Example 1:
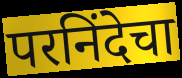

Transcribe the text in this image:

परनिंदेचा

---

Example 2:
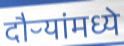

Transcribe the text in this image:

दौऱ्यांमध्ये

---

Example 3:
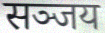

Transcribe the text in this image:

सञ्जय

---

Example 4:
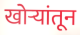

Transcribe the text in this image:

खोऱ्यांतून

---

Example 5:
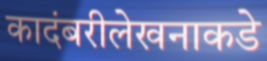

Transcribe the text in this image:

कादंबरीलेखनाकडे